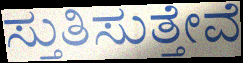
ಸ್ತುತಿಸುತ್ತೇವೆ